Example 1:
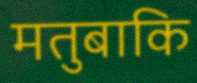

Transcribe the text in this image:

मतुबाकि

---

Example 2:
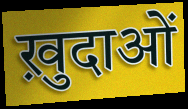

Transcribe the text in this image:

ख़ुदाओं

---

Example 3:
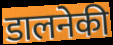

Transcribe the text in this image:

डालनेकी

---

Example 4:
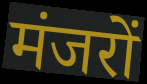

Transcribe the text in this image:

मंजरों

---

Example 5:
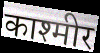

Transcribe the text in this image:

काश्मीर